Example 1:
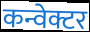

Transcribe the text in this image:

कन्वेक्टर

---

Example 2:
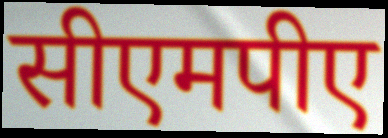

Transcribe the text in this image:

सीएमपीए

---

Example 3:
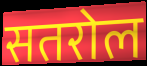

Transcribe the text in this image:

सतरोल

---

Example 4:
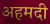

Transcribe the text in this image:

अहमदी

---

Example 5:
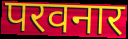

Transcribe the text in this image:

परवनार